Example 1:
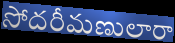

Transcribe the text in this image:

సోదరీమణులారా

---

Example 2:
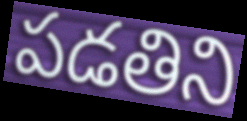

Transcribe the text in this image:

పడతిని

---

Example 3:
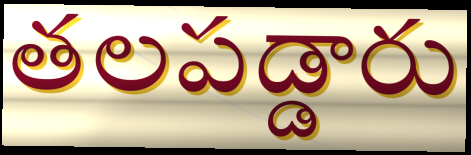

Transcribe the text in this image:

తలపడ్డారు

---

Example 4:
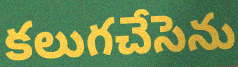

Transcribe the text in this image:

కలుగచేసెను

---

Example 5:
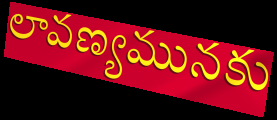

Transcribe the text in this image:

లావణ్యమునకు